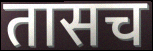
तासच